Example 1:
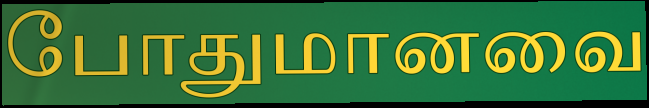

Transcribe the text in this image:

போதுமானவை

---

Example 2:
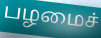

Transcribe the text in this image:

பழமைச்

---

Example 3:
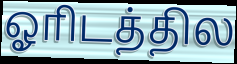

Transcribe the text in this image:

ஓரிடத்தில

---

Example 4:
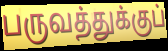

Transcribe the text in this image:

பருவத்துக்குப்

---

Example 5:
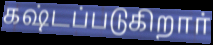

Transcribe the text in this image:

கஷ்டப்படுகிறார்